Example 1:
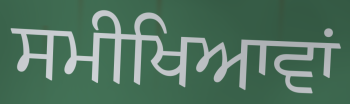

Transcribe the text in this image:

ਸਮੀਖਿਆਵਾਂ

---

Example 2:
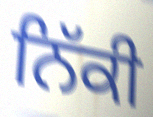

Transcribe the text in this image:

ਨਿੱਕੀ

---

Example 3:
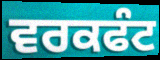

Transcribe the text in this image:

ਵਰਕਫੰਟ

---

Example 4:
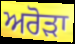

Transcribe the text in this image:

ਅਰੋੜਾ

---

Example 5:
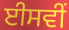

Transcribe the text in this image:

ਈਸਵੀਂ